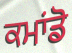
ਕਮਾਂਡੋ